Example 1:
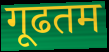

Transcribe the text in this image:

गूढतम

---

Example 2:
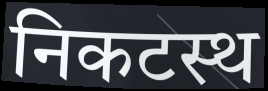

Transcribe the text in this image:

निकटस्‍थ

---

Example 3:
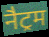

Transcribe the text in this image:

नैट्रम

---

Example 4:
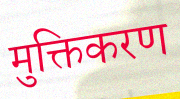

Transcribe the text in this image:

मुक्तिकरण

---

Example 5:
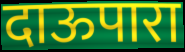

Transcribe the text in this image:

दाऊपारा